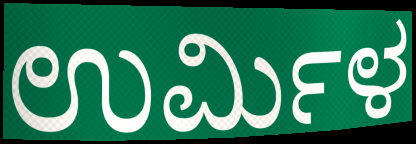
ಉರ್ಮಿಳ